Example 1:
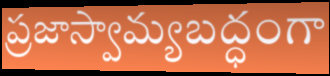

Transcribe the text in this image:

ప్రజాస్వామ్యబద్ధంగా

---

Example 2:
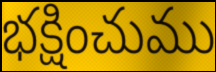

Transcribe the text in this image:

భక్షించుము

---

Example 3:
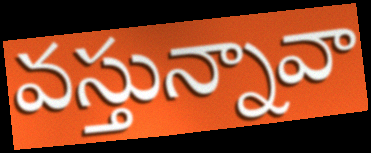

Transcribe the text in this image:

వస్తున్నావా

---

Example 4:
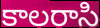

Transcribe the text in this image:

కాలరాసి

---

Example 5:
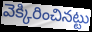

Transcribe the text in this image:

వెక్కిరించినట్టు